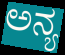
ಅನ್ಯ